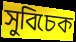
সুবিচেক